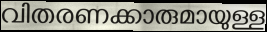
വിതരണക്കാരുമായുള്ള